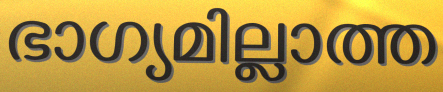
ഭാഗ്യമില്ലാത്ത